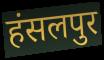
हंसलपुर